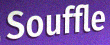
Souffle